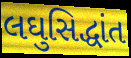
લઘુસિદ્ધાંત